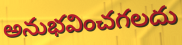
అనుభవించగలదు